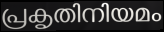
പ്രകൃതിനിയമം